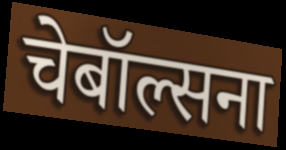
चेबॉल्सना